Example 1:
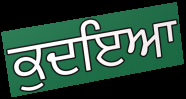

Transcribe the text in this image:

ਕੁਦਇਆ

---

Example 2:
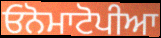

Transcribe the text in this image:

ਓਨੋਮਾਟੋਪੀਆ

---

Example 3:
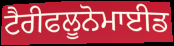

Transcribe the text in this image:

ਟੈਰੀਫਲੂਨੋਮਾਈਡ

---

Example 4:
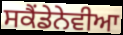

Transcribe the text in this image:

ਸਕੈਂਡੇਨੇਵੀਆ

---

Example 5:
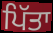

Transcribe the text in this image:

ਪਿੱਤਾ